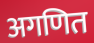
अगणित